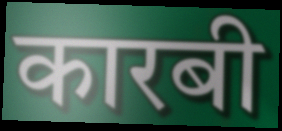
कारबी